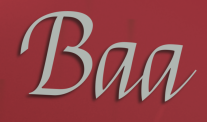
Baa